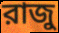
রাজু